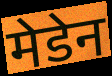
मेडेन